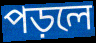
পড়লে